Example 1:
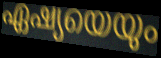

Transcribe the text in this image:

ഏഷ്യയെയും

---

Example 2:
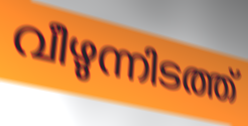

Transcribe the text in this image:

വീഴുന്നിടത്ത്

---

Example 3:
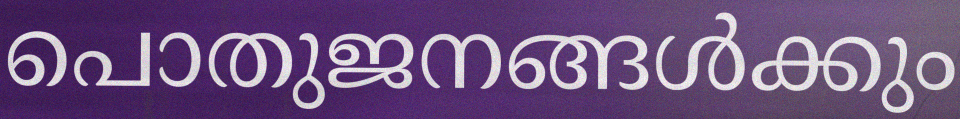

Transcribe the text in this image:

പൊതുജനങ്ങൾക്കും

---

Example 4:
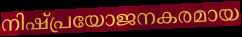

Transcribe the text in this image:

നിഷ്പ്രയോജനകരമായ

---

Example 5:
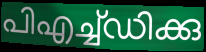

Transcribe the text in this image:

പിഎച്ച്ഡിക്കു